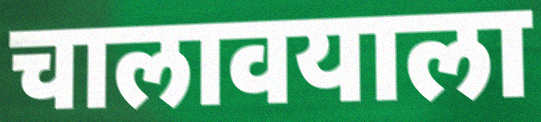
चालावयाला